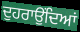
ਦੁਹਰਾਉਂਦਿਆਂ